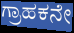
ಗ್ರಾಹಕನೇ